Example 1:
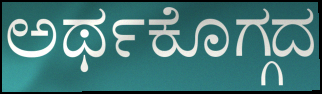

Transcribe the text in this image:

ಅರ್ಥಕೊಗ್ಗದ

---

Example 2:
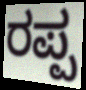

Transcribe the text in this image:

ರಪ್ಪ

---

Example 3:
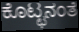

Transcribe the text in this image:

ಕೊಟ್ಟನಂತೆ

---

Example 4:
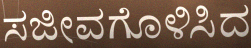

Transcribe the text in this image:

ಸಜೀವಗೊಳಿಸಿದ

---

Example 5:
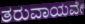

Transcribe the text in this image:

ತರುವಾಯವೇ